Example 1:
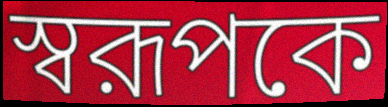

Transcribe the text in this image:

স্বরূপকে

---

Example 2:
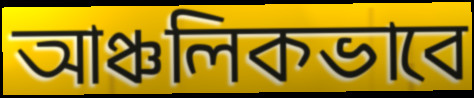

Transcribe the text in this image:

আঞ্চলিকভাবে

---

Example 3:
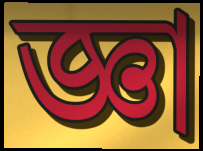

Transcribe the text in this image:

জ্ঞা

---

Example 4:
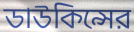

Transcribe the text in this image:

ডাউকিন্সের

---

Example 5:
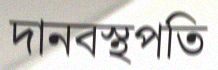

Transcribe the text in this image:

দানবস্থপতি